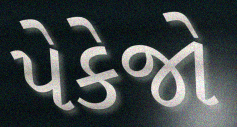
પેકેજો